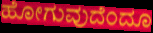
ಹೋಗುವುದೆಂದೂ